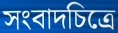
সংবাদচিত্রে